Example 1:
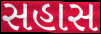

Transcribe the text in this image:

સહાસ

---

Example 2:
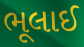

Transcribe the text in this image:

ભૂલાઈ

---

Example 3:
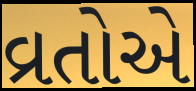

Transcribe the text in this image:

વ્રતોએ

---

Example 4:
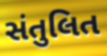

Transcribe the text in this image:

સંતુલિત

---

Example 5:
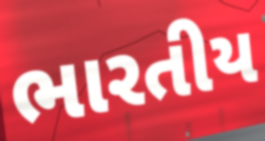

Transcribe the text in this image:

ભારતીય